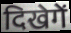
दिखेगें